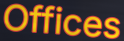
Offices